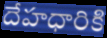
దేహధారికి